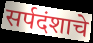
सर्पदंशाचे